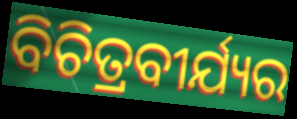
ବିଚିତ୍ରବୀର୍ଯ୍ୟର